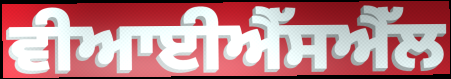
ਵੀਆਈਐੱਸਐੱਲ